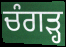
ਚੰਗੜ੍ਹ